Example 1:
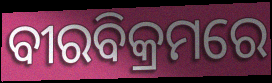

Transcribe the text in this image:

ବୀରବିକ୍ରମରେ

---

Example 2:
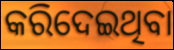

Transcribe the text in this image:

କରିଦେଇଥିବା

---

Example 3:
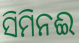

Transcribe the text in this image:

ସିମିନଈ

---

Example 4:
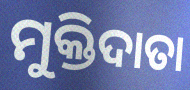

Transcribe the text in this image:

ମୁକ୍ତିଦାତା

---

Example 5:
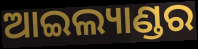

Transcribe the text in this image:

ଆଇଲ୍ୟାଣ୍ଡର